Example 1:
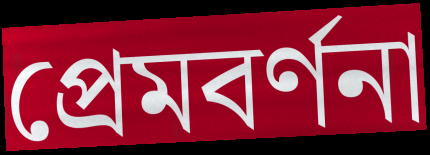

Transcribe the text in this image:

প্রেমবর্ণনা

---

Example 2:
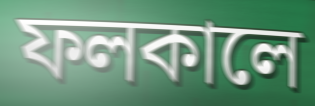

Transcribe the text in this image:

ফলকালে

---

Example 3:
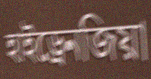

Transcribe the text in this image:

হাইড্রেনজিয়া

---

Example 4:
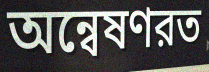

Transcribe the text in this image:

অন্বেষণরত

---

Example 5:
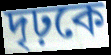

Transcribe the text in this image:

দৃঢ়কে